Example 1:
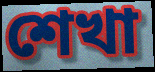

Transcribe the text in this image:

শেখা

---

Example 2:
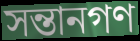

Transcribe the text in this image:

সন্তানগণ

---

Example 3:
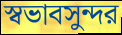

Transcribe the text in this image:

স্বভাবসুন্দর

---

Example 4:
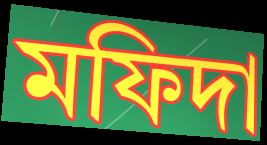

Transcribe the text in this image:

মফিদা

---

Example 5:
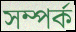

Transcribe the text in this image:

সম্পর্ক